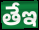
తేఇ